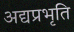
अद्यप्रभृति